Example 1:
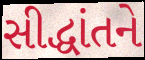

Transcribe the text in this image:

સીદ્ધાંતને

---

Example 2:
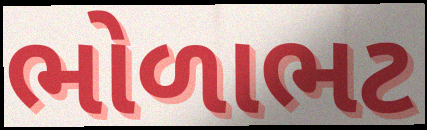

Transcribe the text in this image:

ભોળાભટ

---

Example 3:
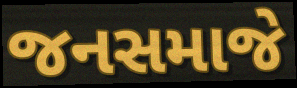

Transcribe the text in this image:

જનસમાજે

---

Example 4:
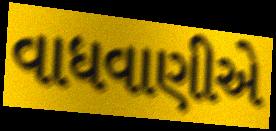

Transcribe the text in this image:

વાધવાણીએ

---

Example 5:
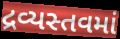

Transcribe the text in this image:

દ્રવ્યસ્તવમાં